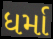
ધર્મા